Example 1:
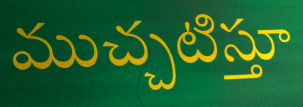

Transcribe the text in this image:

ముచ్చటిస్తూ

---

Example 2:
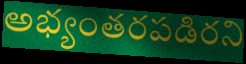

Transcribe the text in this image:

అభ్యంతరపడిరని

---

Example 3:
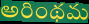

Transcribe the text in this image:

అరింథమ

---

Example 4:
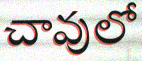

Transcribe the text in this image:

చావులో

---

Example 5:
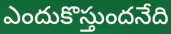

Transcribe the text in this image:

ఎందుకొస్తుందనేది